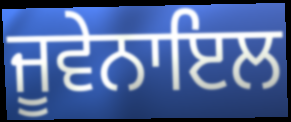
ਜੂਵੇਨਾਇਲ